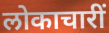
लोकाचारीं